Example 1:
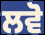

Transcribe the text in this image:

ਲਵੋ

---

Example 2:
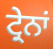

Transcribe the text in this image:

ਟ੍ਰੇਨਾਂ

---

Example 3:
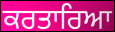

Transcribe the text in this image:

ਕਰਤਾਰਿਆ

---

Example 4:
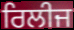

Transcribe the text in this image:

ਰਿਲੀਜ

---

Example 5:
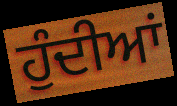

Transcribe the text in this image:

ਹੁੰਦੀਆਂ